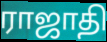
ராஜாதி